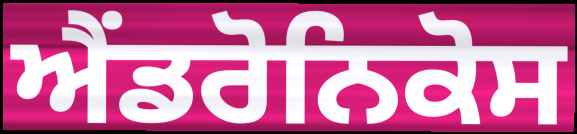
ਐਂਡਰੋਨਿਕੋਸ